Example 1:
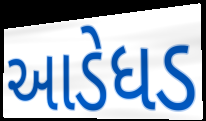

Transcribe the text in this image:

આડેધડ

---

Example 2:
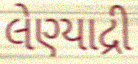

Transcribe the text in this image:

લેણ્યાદ્રી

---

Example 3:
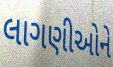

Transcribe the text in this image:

લાગણીઓને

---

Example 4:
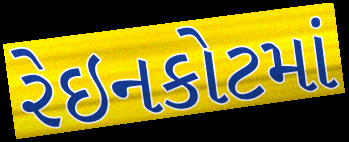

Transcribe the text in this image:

રેઇનકોટમાં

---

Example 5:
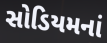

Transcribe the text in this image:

સોડિયમનાં